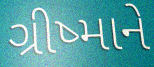
ગ્રીષ્માને